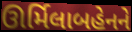
ઊર્મિલાબહેનને